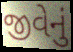
જીવેનું